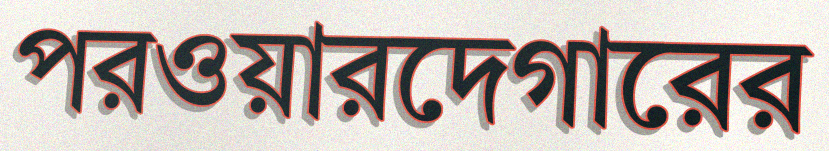
পরওয়ারদেগারের